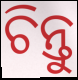
ଚିନ୍ତୁ